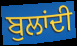
ਬੁਲਾਂਦੀ